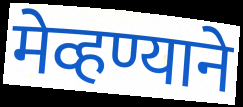
मेव्हण्याने